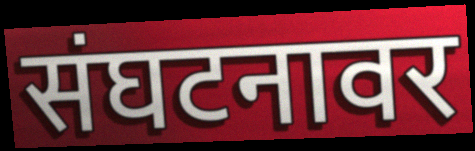
संघटनावर